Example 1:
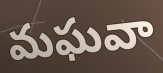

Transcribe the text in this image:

మఘవా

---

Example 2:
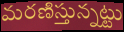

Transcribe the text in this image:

మరణిస్తున్నట్టు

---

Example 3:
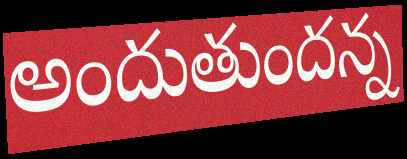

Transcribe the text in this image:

అందుతుందన్న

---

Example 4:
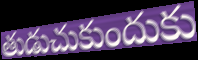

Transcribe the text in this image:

తుడుచుకుందుకు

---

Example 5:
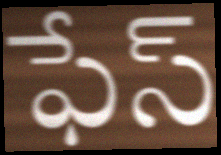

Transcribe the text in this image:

ఫేస్